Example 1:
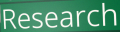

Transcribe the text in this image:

Research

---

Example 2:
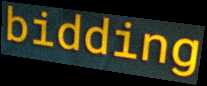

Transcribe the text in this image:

bidding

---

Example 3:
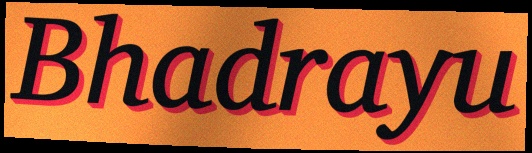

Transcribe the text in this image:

Bhadrayu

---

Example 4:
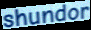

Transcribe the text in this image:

shundor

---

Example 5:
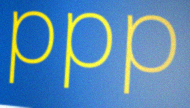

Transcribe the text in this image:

ppp